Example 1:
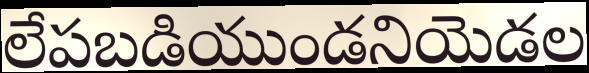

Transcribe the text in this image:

లేపబడియుండనియెడల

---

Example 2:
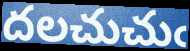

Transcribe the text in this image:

దలచుచుఁ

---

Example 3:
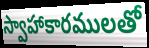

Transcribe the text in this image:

స్వాహాకారములతో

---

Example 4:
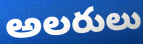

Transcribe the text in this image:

అలరులు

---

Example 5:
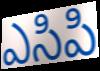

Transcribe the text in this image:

ఎసిపి